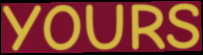
YOURS